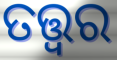
ତତ୍ତ୍ବର